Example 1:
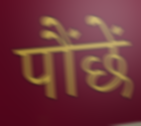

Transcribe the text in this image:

पौंछें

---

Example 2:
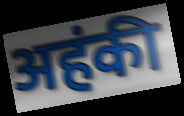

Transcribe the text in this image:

अहंकी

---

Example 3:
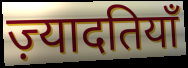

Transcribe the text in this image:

ज़्यादतियाँ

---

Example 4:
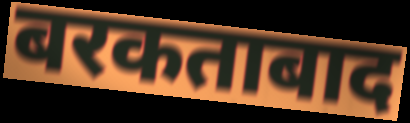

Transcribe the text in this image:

बरकताबाद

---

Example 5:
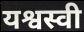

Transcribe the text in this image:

यश्वस्वी